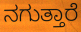
ನಗುತ್ತಾರೆ